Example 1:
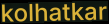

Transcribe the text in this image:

kolhatkar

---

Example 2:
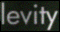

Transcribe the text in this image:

levity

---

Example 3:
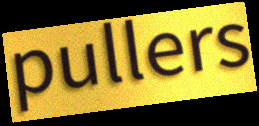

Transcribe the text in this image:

pullers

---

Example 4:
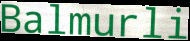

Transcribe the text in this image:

Balmurli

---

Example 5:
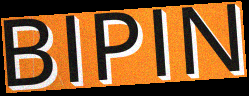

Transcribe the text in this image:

BIPIN